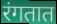
रंगतात